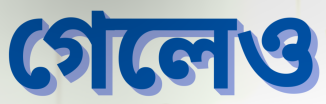
গেলেও